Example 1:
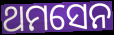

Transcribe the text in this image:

ଥମସେନ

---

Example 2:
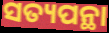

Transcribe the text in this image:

ସତ୍ୟପନ୍ଥା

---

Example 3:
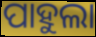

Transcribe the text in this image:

ପାହୁଲା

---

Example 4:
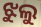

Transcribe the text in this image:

ଝୁଲୁ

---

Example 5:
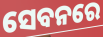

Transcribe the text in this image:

ସେବନରେ